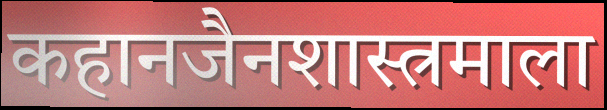
कहानजैनशास्त्रमाला